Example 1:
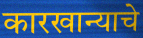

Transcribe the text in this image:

कारखान्याचे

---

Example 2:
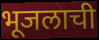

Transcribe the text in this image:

भूजलाची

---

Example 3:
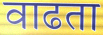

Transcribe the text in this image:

वाढता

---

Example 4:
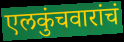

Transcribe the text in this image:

एलकुंचवारांचं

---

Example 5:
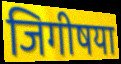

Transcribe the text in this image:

जिगीषया